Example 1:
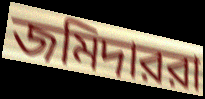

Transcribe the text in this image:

জমিদাররা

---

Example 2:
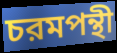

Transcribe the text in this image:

চরমপন্থী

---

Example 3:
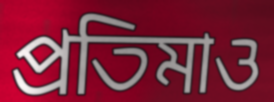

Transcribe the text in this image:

প্রতিমাও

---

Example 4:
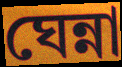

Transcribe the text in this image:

ঘেন্না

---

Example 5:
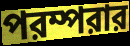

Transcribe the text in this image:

পরম্পরার